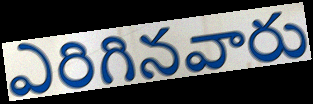
ఎరిగినవారు